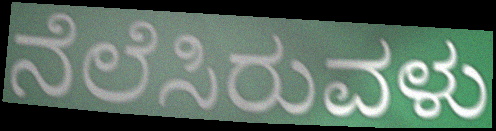
ನೆಲೆಸಿರುವಳು